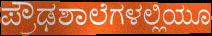
ಪ್ರೌಢಶಾಲೆಗಳಲ್ಲಿಯೂ